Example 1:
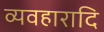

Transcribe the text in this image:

व्यवहारादि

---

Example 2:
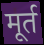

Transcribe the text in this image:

मूर्त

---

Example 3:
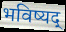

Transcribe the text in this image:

भविष्यद्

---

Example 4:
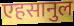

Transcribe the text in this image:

एहसानुल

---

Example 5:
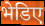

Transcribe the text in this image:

भेडिए